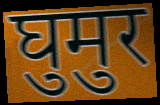
घुमुर